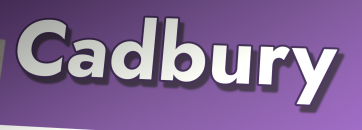
Cadbury